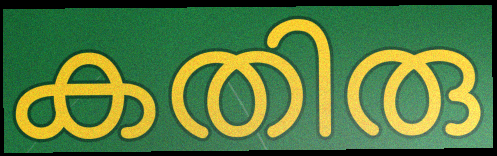
കതിരു